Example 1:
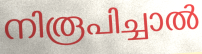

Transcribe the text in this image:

നിരൂപിച്ചാൽ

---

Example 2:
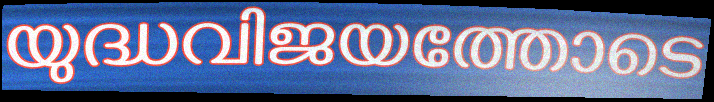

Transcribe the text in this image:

യുദ്ധവിജയത്തോടെ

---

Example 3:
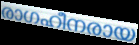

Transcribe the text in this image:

രാഗഹീനരായ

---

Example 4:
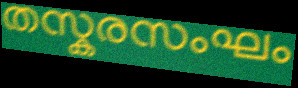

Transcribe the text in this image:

തസ്കരസംഘം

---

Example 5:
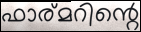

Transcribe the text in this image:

ഫാര്മറിന്റെ